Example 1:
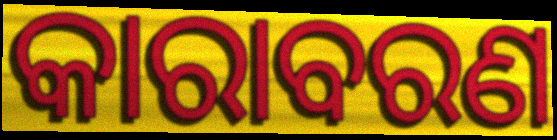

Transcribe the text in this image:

କାରାବରଣ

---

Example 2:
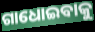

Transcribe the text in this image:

ଗାଧୋଇବାକୁ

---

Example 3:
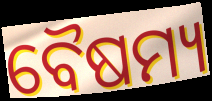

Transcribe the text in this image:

ବୈଷମ୍ୟ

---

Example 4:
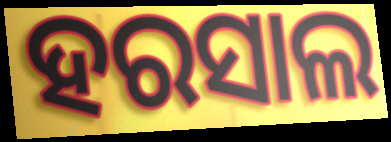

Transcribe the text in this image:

ହରସାଲ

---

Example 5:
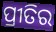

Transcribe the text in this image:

ପ୍ରୀତିର